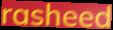
rasheed